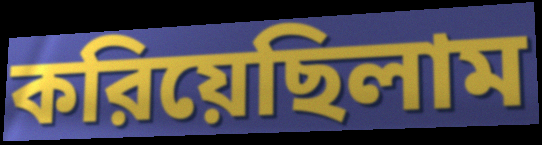
করিয়েছিলাম